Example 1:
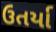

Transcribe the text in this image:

ઉતર્યા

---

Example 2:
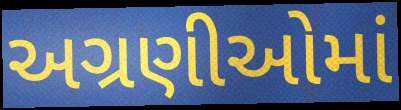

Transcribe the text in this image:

અગ્રણીઓમાં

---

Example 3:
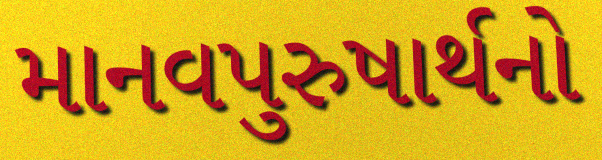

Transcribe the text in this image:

માનવપુરુષાર્થનો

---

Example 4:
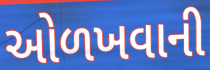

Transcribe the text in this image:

ઓળખવાની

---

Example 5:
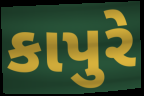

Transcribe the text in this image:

કાપુરે